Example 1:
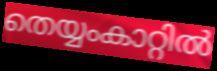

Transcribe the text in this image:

തെയ്യംകാറ്റിൽ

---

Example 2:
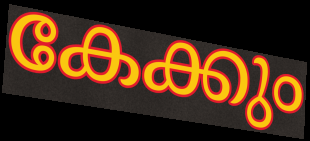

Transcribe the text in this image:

കേക്കും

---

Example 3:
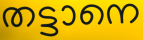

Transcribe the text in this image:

തട്ടാനെ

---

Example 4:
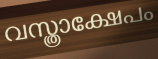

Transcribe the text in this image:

വസ്ത്രാക്ഷേപം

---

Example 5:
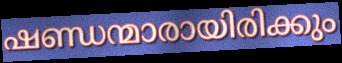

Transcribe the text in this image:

ഷണ്ഡന്മാരായിരിക്കും